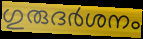
ഗുരുദർശനം